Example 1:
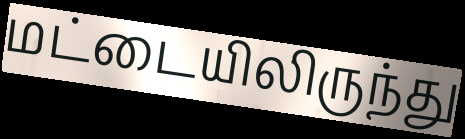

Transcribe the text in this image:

மட்டையிலிருந்து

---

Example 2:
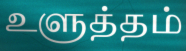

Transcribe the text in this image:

உளுத்தம்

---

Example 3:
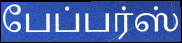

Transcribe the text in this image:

பேப்பர்ஸ்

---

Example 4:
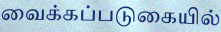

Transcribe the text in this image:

வைக்கப்படுகையில்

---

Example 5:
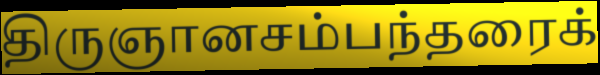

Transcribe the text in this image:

திருஞானசம்பந்தரைக்